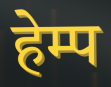
हेम्प